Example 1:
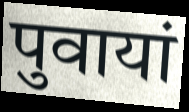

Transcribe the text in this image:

पुवायां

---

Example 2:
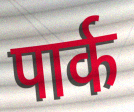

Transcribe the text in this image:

पार्क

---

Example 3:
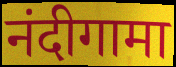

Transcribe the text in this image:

नंदीगामा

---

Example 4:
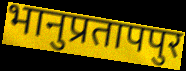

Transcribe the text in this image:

भानुप्रतापपुर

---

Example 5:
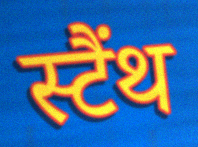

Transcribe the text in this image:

स्टैंथ